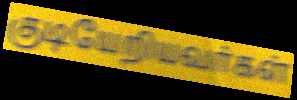
குடியேறியவர்கள்